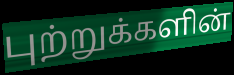
புற்றுக்களின்